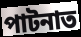
পাটনাত